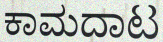
ಕಾಮದಾಟ